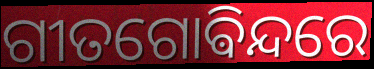
ଗୀତଗୋଵିନ୍ଦରେ